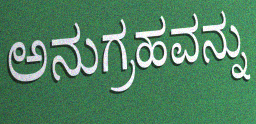
ಅನುಗ್ರಹವನ್ನು